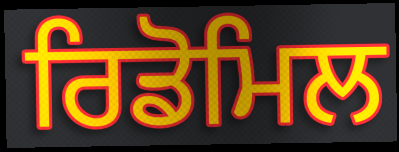
ਰਿਡੋਮਿਲ